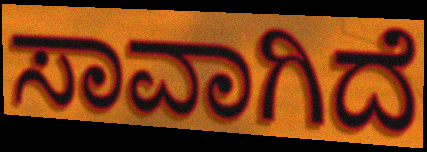
ಸಾವಾಗಿದೆ